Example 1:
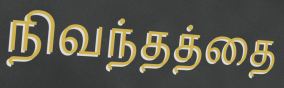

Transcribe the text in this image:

நிவந்தத்தை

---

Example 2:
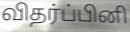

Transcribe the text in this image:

விதர்ப்பினி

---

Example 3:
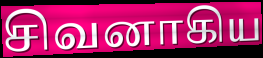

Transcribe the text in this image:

சிவனாகிய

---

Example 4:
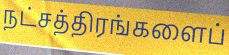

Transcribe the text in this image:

நட்சத்திரங்களைப்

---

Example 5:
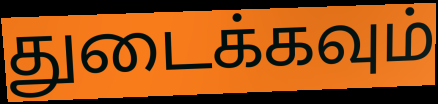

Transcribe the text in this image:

துடைக்கவும்